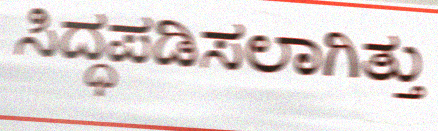
ಸಿದ್ಧಪಡಿಸಲಾಗಿತ್ತು